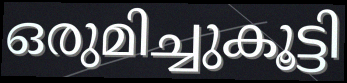
ഒരുമിച്ചുകൂട്ടി